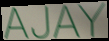
AJAY